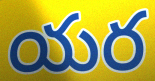
యర